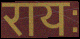
रायः